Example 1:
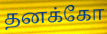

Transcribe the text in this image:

தனக்கோ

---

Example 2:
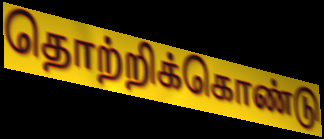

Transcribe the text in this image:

தொற்றிக்கொண்டு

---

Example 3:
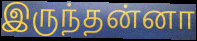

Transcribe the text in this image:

இருந்தன்னா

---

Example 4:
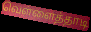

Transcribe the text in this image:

வெள்ளைத்தாடி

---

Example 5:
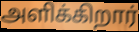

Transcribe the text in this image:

அளிக்கிறார்